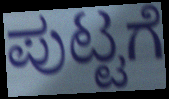
ಪುಟ್ಟಗೆ